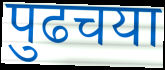
पुढचया